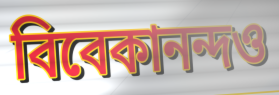
বিবেকানন্দও